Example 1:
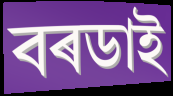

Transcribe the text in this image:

বৰডাই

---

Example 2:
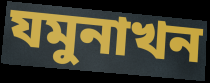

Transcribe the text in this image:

যমুনাখন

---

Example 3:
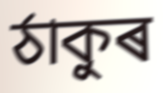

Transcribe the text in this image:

ঠাকুৰ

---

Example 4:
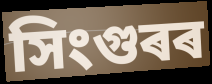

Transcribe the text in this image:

সিংগুৰৰ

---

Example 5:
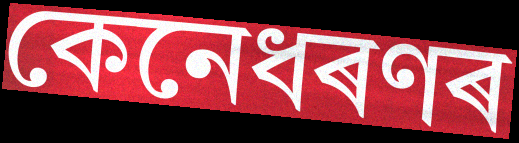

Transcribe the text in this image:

কেনেধৰণৰ